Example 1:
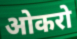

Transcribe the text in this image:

ओकरो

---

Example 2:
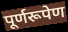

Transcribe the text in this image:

पूर्णरूपेण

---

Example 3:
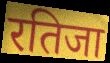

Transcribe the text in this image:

रतिजा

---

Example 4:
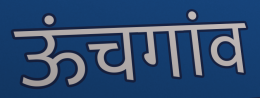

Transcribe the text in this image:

ऊंचगांव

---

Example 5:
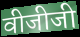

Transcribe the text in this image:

वीजीजी